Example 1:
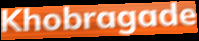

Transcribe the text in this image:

Khobragade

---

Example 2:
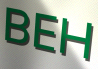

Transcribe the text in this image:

BEH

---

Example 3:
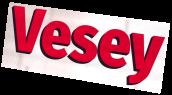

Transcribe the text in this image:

Vesey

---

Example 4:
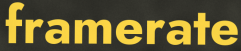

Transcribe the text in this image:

framerate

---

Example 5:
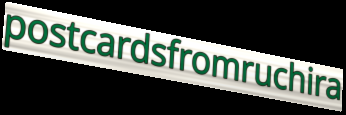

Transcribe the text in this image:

postcardsfromruchira